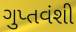
ગુપ્તવંશી